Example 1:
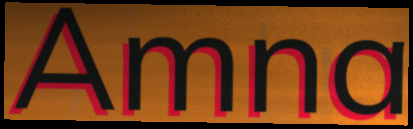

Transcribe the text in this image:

Amna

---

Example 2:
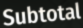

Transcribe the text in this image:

Subtotal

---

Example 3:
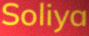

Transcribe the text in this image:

Soliya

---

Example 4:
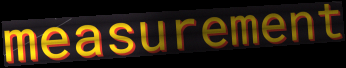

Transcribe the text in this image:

measurement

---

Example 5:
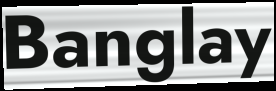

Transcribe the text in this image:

Banglay